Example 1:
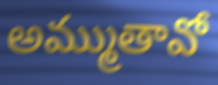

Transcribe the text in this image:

అమ్ముతావో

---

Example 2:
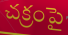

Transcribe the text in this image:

చక్రంపై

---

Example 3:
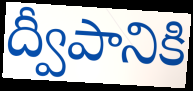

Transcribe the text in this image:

ద్వీపానికి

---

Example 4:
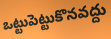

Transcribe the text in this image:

ఒట్టుపెట్టుకొనవద్దు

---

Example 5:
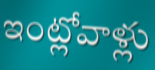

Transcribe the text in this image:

ఇంట్లోవాళ్లు